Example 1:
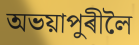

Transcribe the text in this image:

অভয়াপুৰীলৈ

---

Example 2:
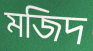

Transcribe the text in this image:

মজিদ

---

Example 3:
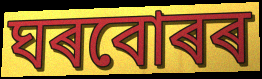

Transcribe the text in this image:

ঘৰবোৰৰ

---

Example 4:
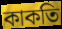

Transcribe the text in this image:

কাকতি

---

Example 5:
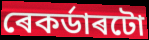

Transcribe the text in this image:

ৰেকৰ্ডাৰটো